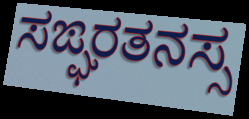
ಸಙ್ಘರತನಸ್ಸ